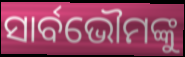
ସାର୍ବଭୌମଙ୍କୁ